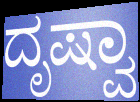
ದೃಷ್ವಾ